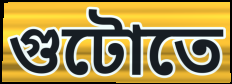
গুটোতে